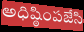
అధిష్ఠింపజేసి